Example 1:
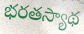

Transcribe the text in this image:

భరతస్యాథ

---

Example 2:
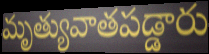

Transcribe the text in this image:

మృత్యువాతపడ్డారు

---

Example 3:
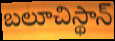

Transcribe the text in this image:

బలూచిస్థాన్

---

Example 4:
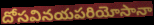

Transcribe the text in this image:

దోసవినయపరియోసానా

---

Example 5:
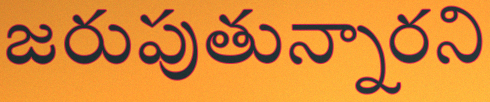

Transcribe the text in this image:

జరుపుతున్నారని